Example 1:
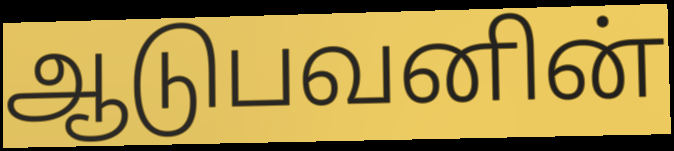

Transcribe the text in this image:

ஆடுபவனின்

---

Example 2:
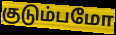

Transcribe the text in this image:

குடும்பமோ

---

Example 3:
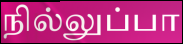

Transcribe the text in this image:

நில்லுப்பா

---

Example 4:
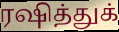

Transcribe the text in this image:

ரஷித்துக்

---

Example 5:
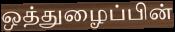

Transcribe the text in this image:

ஒத்துழைப்பின்